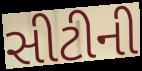
સીટીની